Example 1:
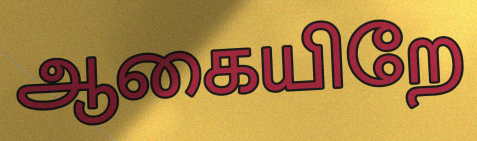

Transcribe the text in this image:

ஆகையிறே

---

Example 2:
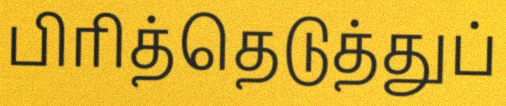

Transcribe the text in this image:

பிரித்தெடுத்துப்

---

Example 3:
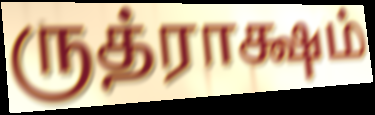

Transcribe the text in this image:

ருத்ராக்ஷம்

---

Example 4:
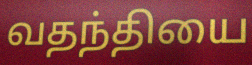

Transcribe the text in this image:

வதந்தியை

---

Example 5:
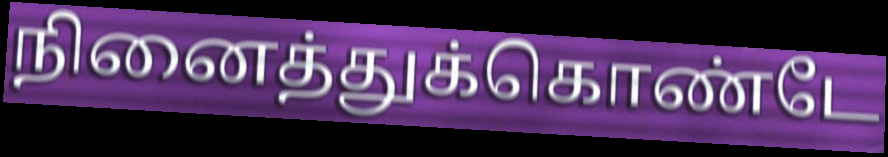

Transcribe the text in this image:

நினைத்துக்கொண்டே